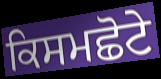
ਕਿਸਮਛੋਟੇ